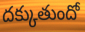
దక్కుతుందో